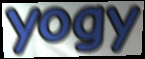
yogy